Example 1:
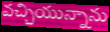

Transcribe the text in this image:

వచ్చియున్నాను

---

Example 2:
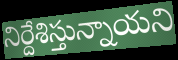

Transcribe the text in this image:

నిర్దేశిస్తున్నాయని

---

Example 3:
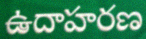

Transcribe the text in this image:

ఉదాహరణ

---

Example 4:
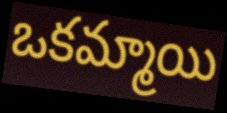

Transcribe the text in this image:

ఒకమ్మాయి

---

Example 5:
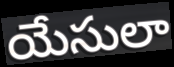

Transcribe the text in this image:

యేసులా